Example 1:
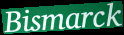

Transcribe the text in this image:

Bismarck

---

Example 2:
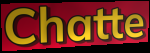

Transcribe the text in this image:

Chatte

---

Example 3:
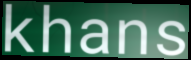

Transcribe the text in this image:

khans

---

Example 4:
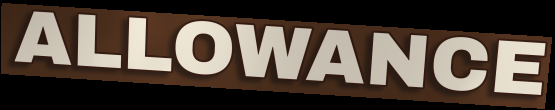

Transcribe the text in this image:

ALLOWANCE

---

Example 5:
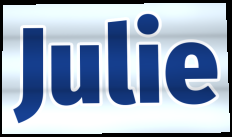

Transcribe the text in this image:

Julie